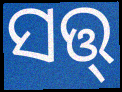
ସତ୍ତ୍